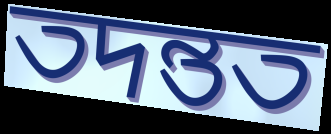
তদন্তত